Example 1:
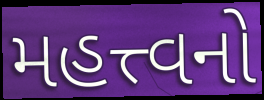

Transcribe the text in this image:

મહત્ત્વનો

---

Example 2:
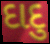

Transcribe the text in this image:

દાદુ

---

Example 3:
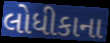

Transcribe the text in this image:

લોધીકાના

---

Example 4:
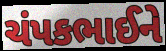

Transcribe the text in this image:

ચંપકભાઈને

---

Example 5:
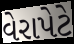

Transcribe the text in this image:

વેરાપેટે